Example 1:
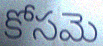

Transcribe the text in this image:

కోసమె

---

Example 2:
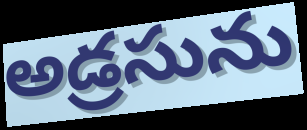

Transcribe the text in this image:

అడ్రసును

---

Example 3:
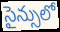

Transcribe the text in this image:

సైన్సులో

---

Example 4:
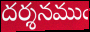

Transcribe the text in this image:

దర్శనముఁ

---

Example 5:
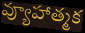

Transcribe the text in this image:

వ్యూహాత్మక